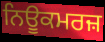
ਨਿਊਕਮਰਜ਼